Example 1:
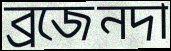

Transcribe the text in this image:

ব্রজেনদা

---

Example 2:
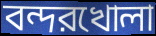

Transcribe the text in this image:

বন্দরখোলা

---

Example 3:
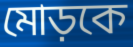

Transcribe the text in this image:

মোড়কে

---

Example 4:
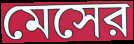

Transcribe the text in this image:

মেসের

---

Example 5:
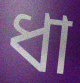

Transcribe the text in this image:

ধা